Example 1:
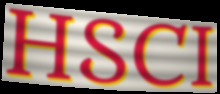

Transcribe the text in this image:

HSCI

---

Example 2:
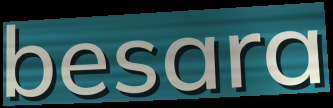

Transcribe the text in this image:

besara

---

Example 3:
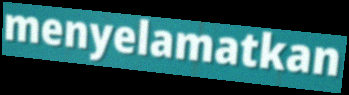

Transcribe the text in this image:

menyelamatkan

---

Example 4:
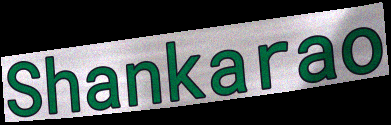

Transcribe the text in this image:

Shankarao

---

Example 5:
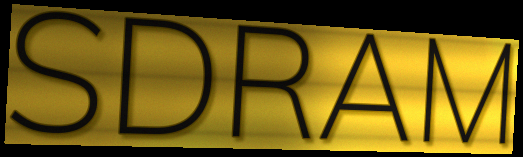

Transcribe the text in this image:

SDRAM